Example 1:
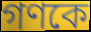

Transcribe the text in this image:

গণকে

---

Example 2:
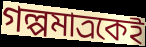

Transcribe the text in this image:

গল্পমাত্রকেই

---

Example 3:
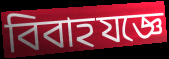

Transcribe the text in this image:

বিবাহযজ্ঞে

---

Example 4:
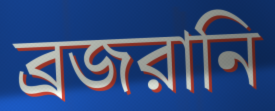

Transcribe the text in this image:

ব্রজরানি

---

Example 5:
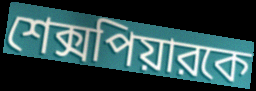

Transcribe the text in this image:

শেক্সপিয়ারকে